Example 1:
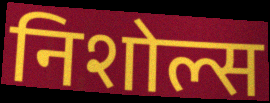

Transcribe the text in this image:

निशोल्स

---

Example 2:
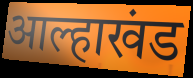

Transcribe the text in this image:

आल्हाखंड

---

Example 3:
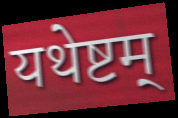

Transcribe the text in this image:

यथेष्टम्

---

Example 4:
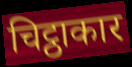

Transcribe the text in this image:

चिट्ठाकार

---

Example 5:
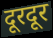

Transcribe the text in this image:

दूरदूर